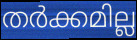
തർക്കമില്ല